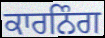
ਕਾਰਨਿੰਗ